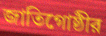
জাতিগোষ্ঠীর